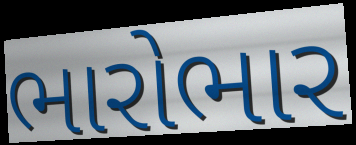
ભારોભાર